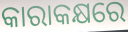
କାରାକକ୍ଷରେ